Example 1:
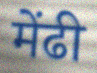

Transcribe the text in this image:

मेंढी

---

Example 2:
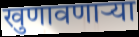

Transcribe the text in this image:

खुणावणाऱ्या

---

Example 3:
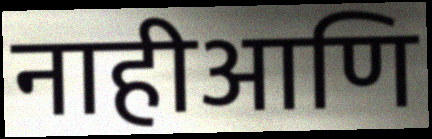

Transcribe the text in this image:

नाहीआणि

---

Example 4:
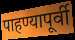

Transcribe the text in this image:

पाहण्यापूर्वी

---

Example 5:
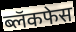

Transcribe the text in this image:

ब्लॅकफेस